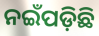
ନଇଁପଡ଼ିଛି